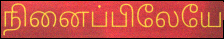
நினைப்பிலேயே